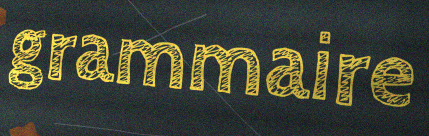
grammaire